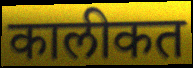
कालीकत